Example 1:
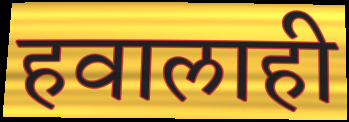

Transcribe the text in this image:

हवालाही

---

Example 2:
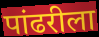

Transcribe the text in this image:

पांढरीला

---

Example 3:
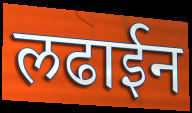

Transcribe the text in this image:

लढाईन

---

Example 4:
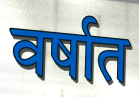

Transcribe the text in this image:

वर्षात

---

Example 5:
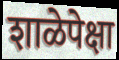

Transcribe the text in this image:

शाळेपेक्षा